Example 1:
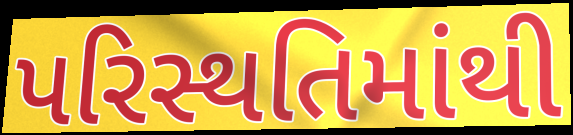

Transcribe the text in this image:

પરિસ્થતિમાંથી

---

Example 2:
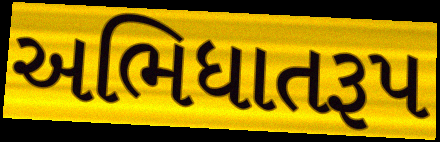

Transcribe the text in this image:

અભિધાતરૂપ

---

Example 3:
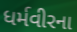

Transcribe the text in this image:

ધર્મવીરના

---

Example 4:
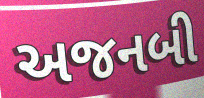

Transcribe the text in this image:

અજનબી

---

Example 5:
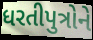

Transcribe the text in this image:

ધરતીપુત્રોને